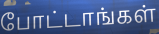
போட்டாங்கள்